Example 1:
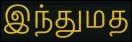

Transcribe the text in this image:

இந்துமத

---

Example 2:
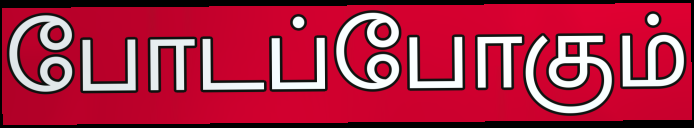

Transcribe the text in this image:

போடப்போகும்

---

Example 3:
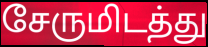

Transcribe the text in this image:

சேருமிடத்து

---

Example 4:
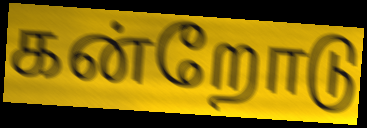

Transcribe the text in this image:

கன்றோடு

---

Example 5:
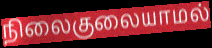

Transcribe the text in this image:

நிலைகுலையாமல்